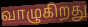
வாழுகிறது